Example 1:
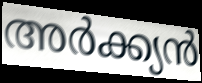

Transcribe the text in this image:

അർക്ക്യൻ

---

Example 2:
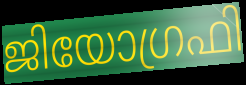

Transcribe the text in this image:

ജിയോഗ്രഫി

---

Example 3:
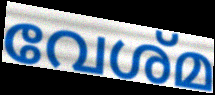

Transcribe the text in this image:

വേശ്മ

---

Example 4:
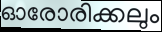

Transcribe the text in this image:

ഓരോരിക്കലും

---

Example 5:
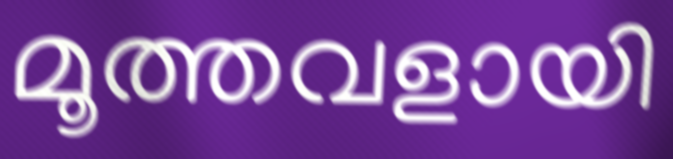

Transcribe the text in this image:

മൂത്തവളായി